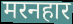
मरनहार